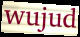
wujud